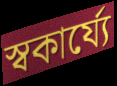
স্বকার্য্যে